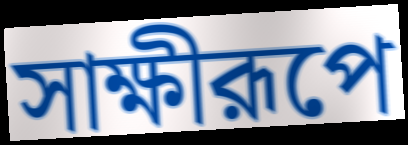
সাক্ষীরূপে